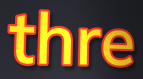
thre